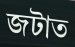
জটাত